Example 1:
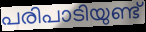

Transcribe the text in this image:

പരിപാടിയുണ്ട്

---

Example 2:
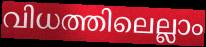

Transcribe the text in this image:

വിധത്തിലെല്ലാം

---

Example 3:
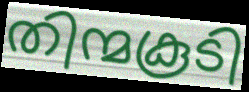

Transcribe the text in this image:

തിന്മകൂടി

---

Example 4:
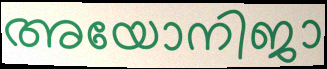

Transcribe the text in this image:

അയോനിജാ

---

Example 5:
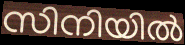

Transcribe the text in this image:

സിനിയിൽ